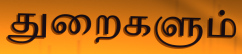
துறைகளும்